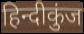
हिन्दीकुंज